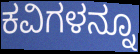
ಕವಿಗಳನ್ನೂ